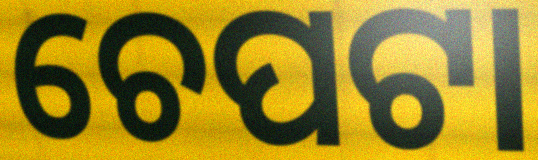
ଚେପଟା